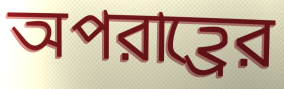
অপরাহ্রের